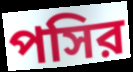
পসির